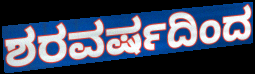
ಶರವರ್ಷದಿಂದ